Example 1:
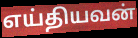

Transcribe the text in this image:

எய்தியவன்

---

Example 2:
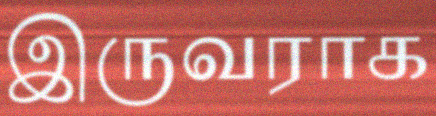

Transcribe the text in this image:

இருவராக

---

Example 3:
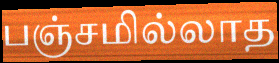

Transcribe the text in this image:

பஞ்சமில்லாத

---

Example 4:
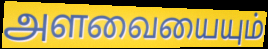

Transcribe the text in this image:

அளவையையும்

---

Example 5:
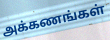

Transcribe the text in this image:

அக்கணங்கள்